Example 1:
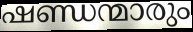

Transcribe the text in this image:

ഷണ്ഡന്മാരും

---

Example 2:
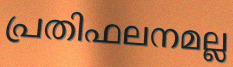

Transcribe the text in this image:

പ്രതിഫലനമല്ല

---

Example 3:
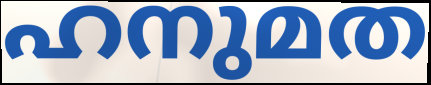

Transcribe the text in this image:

ഹനുമത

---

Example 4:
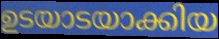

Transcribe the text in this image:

ഉടയാടയാക്കിയ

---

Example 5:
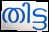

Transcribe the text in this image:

തിട്ട